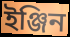
ইঞ্জিন